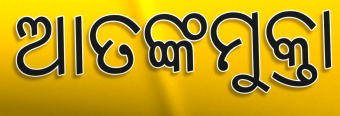
ଆତଙ୍କମୁକ୍ତା